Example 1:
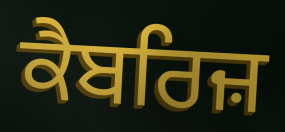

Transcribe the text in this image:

ਕੈਬਰਿਜ਼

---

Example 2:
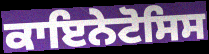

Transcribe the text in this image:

ਕਾਇਨੇਟੋਸਿਸ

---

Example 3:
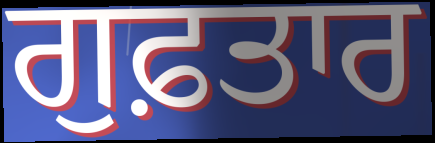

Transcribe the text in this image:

ਗੁਫ਼ਤਾਰ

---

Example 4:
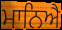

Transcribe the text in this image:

ਮਾਨਿਐ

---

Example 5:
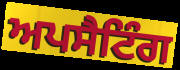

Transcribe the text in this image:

ਅਪਸੈਟਿੰਗ